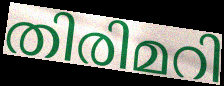
തിരിമറി